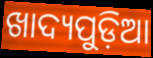
ଖାଦ୍ୟପୁଡ଼ିଆ